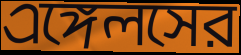
এঙ্গেলসের